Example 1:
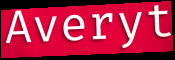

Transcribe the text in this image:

Averyt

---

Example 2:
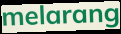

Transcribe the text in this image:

melarang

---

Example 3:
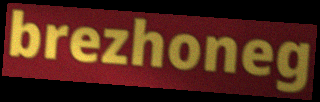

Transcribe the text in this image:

brezhoneg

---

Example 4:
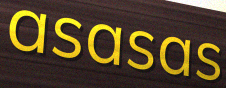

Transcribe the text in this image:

asasas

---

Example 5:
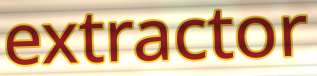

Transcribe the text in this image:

extractor